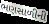
ભણસાળીની